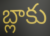
బ్లాకు